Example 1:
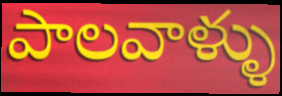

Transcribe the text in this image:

పాలవాళ్ళు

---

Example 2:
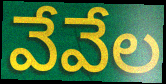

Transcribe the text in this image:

వేవేల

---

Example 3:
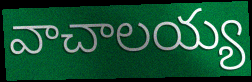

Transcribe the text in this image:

వాచాలయ్య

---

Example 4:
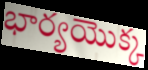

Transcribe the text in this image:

భార్యయొక్క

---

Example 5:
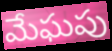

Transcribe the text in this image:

మేఘపు